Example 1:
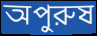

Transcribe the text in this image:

অপুরুষ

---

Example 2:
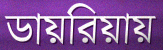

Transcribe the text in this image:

ডায়রিয়ায়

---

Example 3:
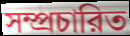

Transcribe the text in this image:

সম্প্রচারিত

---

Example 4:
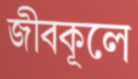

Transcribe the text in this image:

জীবকূলে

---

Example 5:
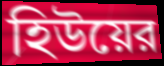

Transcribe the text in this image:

হিউয়ের